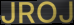
JROJ